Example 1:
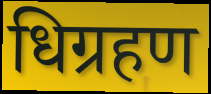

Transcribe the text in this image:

धिग्रहण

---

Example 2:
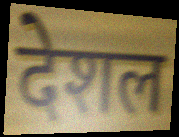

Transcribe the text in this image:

देशल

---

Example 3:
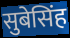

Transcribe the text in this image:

सुबेसिंह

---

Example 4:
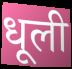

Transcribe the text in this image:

धूली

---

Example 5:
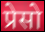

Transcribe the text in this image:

प्रेसो